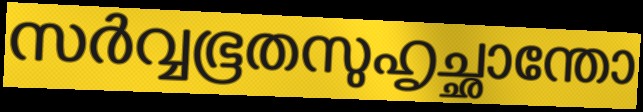
സർവ്വഭൂതസുഹൃച്ഛാന്തോ